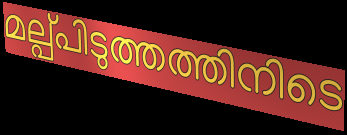
മല്പ്പിടുത്തത്തിനിടെ